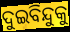
ଦୁଇବିନ୍ଦୁକୁ